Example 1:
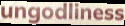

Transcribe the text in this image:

ungodliness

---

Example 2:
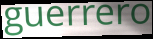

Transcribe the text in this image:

guerrero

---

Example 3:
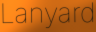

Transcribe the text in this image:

Lanyard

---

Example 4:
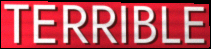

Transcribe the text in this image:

TERRIBLE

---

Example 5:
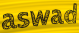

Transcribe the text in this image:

aswad